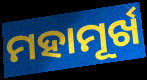
ମହାମୂର୍ଖ